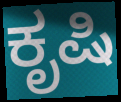
ಕೃಷಿ